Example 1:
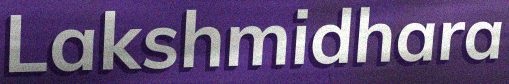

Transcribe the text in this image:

Lakshmidhara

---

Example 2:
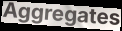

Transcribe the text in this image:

Aggregates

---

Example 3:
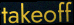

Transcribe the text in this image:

takeoff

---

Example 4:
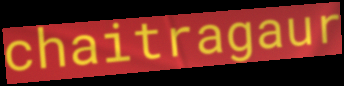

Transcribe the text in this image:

chaitragaur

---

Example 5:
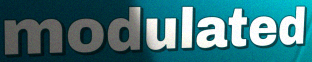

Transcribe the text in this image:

modulated